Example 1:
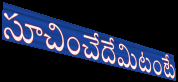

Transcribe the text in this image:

సూచించేదేమిటంటే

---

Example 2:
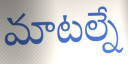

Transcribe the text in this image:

మాటల్నే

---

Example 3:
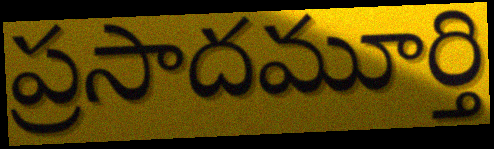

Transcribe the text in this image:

ప్రసాదమూర్తి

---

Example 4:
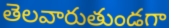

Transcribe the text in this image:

తెలవారుతుండగా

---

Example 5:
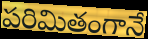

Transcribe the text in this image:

పరిమితంగానే